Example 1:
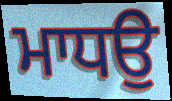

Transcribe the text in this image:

ਮਾਧਉ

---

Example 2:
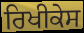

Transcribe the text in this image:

ਰਿਖੀਕੇਸ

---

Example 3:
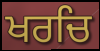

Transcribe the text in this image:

ਖਰਚਿ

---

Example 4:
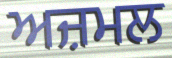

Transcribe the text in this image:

ਅਜ਼ਮਲ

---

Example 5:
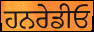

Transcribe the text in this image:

ਹਨਰੇਡੀਓ